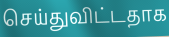
செய்துவிட்டதாக